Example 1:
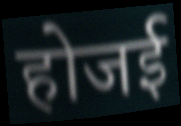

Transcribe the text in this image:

होजई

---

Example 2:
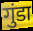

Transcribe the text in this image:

गुंडा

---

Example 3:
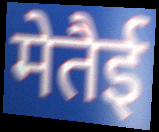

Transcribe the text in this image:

मेतैई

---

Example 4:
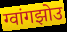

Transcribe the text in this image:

ग्वांगझोउ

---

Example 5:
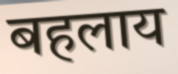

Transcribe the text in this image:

बहलाय